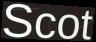
Scot